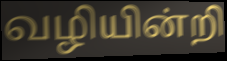
வழியின்றி